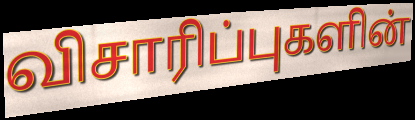
விசாரிப்புகளின்